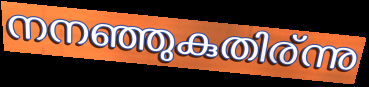
നനഞ്ഞുകുതിര്ന്നു